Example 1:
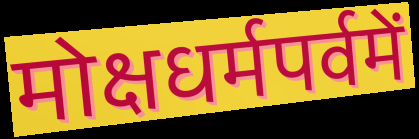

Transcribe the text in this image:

मोक्षधर्मपर्वमें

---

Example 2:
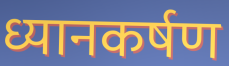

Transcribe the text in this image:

ध्यानकर्षण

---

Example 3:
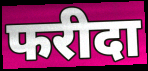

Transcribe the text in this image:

फरीदा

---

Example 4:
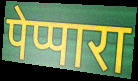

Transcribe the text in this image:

पेप्पारा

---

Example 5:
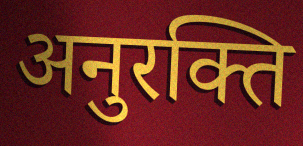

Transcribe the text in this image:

अनुरक्ति